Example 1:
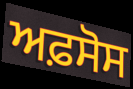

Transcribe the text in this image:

ਅਫ਼ਸੋਸ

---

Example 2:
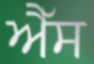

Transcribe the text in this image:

ਐੱਸ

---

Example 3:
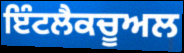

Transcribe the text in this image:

ਇੰਟਲੈਕਚੂਅਲ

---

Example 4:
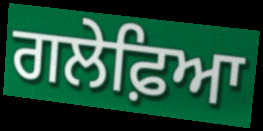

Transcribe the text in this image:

ਗਲੇਫ਼ਿਆ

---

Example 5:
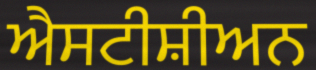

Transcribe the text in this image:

ਐਸਟੀਸ਼ੀਅਨ